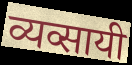
व्यव्सायी